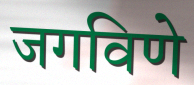
जगविणे